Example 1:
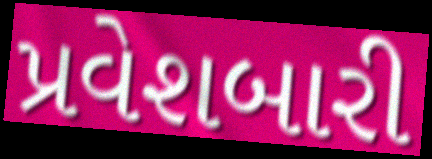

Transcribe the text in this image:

પ્રવેશબારી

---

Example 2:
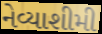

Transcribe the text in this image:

નેવ્યાશીમી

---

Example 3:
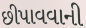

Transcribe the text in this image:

છીપાવવાની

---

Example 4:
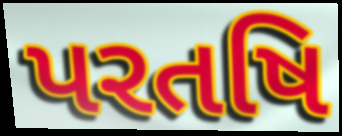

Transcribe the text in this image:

પરતષિ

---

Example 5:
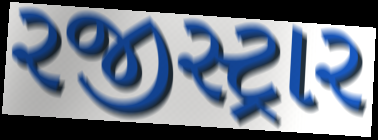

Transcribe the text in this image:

રજીસ્ટ્રાર